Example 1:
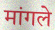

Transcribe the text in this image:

मांगले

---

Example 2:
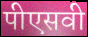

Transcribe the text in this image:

पीएसवी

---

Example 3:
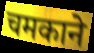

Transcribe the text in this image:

चमकाने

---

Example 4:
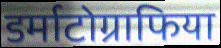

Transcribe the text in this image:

डर्माटोग्राफिया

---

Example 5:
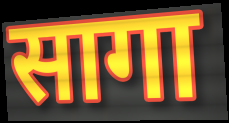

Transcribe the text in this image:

सागा